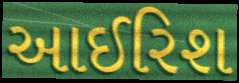
આઈરિશ